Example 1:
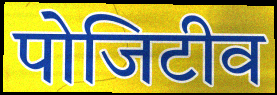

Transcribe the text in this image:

पोजिटीव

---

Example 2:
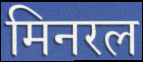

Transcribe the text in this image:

मिनरल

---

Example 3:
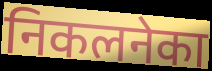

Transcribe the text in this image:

निकलनेका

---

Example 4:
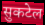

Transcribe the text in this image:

सुकटेल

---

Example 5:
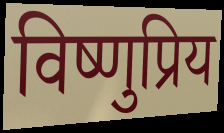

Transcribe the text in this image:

विष्णुप्रिय